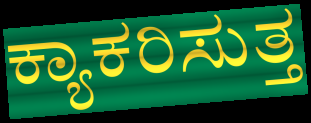
ಕ್ಯಾಕರಿಸುತ್ತ